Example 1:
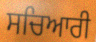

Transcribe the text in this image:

ਸਚਿਆਰੀ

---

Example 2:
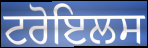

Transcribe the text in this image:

ਟਰੋਇਲਸ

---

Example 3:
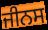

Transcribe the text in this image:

ਜੀਨਸ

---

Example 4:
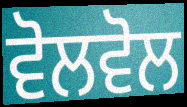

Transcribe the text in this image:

ਵੋਲਵੋਲ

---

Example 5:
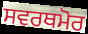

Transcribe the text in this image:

ਸਵਰਥਮੋਰ